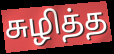
சுழித்த